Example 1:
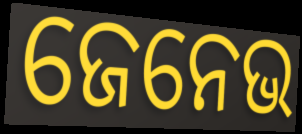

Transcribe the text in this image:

ଜେନେଭ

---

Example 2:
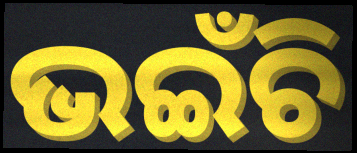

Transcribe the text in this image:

ଭଇଁଚି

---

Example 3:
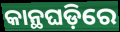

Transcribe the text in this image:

କାନ୍ଥଘଡ଼ିରେ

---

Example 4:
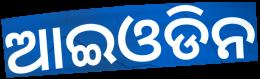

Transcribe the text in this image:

ଆଇଓଡିନ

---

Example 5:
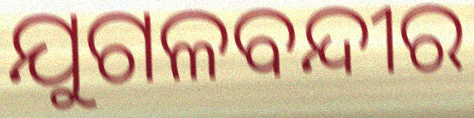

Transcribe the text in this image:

ଯୁଗଳବନ୍ଦୀର